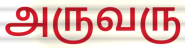
அருவரு